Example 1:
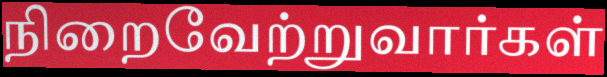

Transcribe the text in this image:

நிறைவேற்றுவார்கள்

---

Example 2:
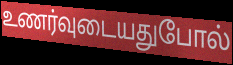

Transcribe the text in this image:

உணர்வுடையதுபோல்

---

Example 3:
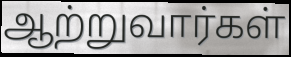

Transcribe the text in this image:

ஆற்றுவார்கள்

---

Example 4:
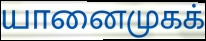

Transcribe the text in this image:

யானைமுகக்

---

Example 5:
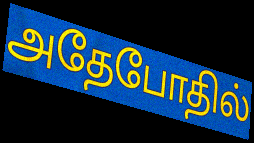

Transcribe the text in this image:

அதேபோதில்